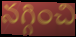
నగ్గించి